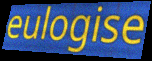
eulogise